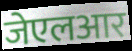
जेएलआर